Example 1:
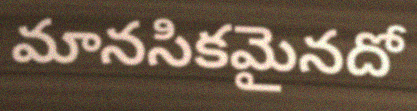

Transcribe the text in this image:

మానసికమైనదో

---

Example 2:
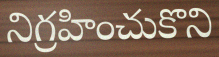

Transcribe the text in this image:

నిగ్రహించుకొని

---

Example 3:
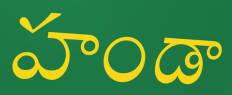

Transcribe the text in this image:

హండా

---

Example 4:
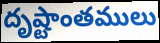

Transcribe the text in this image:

దృష్టాంతములు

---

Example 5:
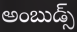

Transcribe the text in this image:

అంబుడ్స్